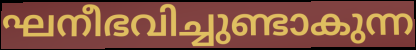
ഘനീഭവിച്ചുണ്ടാകുന്ന